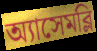
অ্যাসেমব্লি